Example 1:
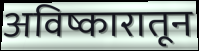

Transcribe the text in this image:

अविष्कारातून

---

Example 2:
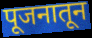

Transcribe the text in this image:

पूजनातून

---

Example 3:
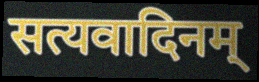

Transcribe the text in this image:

सत्यवादिनम्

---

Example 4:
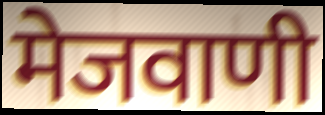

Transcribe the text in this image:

मेजवाणी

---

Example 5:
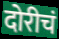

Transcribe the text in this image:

दोरीचं